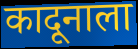
कादूनाला